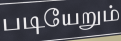
படியேறும்